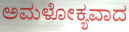
ಅಮಳೋಕ್ಯವಾದ